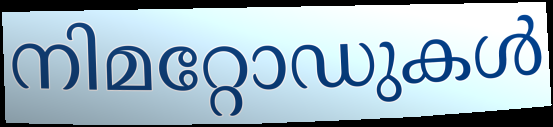
നിമറ്റോഡുകൾ